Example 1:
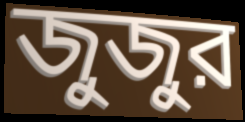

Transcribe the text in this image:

জুজুর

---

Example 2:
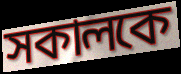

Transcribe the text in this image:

সকালকে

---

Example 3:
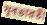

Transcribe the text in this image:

যুবভারতী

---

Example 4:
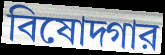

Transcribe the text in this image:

বিষোদ্গার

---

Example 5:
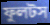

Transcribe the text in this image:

ফুলটস